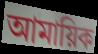
আমায়িক